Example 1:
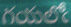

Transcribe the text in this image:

గయలోఁ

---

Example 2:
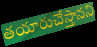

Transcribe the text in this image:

తయారుచేస్తానని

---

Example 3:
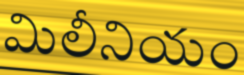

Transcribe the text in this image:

మిలీనియం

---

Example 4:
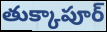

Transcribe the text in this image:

తుక్కాపూర్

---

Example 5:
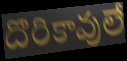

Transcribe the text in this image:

దొరికావులే